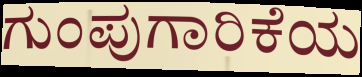
ಗುಂಪುಗಾರಿಕೆಯ